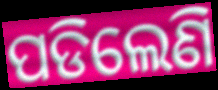
ପଡିଲେଣି